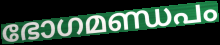
ഭോഗമണ്ഡപം